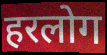
हरलोग